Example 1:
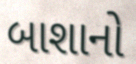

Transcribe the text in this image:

બાશાનો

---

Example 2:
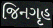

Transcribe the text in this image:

જિનગૃહ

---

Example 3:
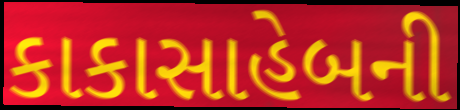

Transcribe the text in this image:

કાકાસાહેબની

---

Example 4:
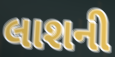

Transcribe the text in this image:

લાશની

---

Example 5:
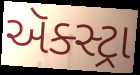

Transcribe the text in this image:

ઍક્સ્ટ્રા